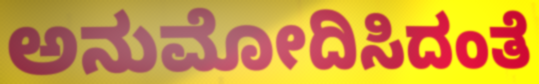
ಅನುಮೋದಿಸಿದಂತೆ